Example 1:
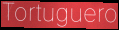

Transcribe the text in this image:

Tortuguero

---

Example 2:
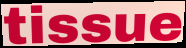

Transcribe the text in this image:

tissue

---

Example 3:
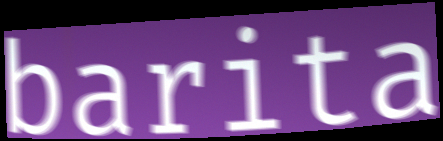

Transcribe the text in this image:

barita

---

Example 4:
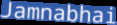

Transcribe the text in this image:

Jamnabhai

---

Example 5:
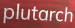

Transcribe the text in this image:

plutarch